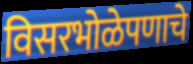
विसरभोळेपणाचे